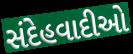
સંદેહવાદીઓ